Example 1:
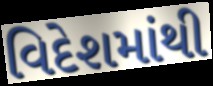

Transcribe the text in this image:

વિદેશમાંથી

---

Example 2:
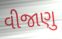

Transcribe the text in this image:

વીજાણુ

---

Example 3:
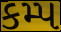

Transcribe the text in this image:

કમ્પ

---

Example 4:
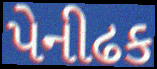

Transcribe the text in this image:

પેનીઢક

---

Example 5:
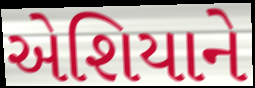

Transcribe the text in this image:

એશિયાને